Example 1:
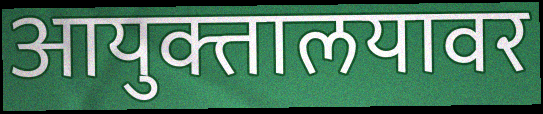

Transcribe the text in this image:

आयुक्तालयावर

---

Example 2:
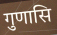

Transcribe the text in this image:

गुणासि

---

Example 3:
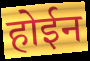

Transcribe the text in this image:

होईन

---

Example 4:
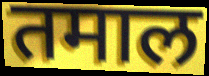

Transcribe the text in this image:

तमाल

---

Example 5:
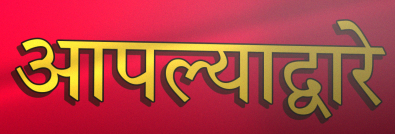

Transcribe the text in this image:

आपल्याद्वारे